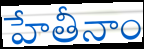
హేతీనాం